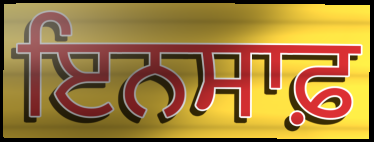
ਇਨਸਾਫ਼